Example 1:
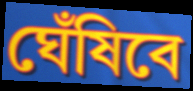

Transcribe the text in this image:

ঘেঁষিবে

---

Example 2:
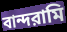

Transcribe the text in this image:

বান্দরামি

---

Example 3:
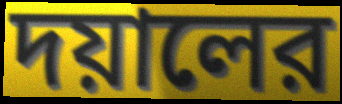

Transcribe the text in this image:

দয়ালের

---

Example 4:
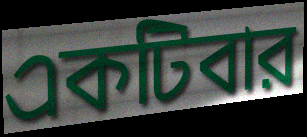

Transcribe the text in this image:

একটিবার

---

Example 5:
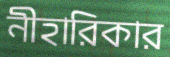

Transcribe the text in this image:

নীহারিকার